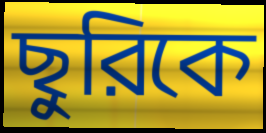
ছুরিকে